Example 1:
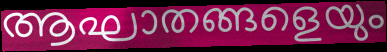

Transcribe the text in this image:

ആഘാതങ്ങളെയും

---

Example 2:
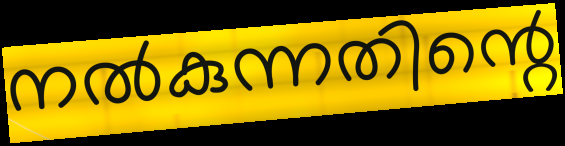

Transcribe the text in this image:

നൽകുന്നതിന്റെ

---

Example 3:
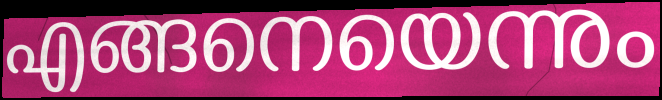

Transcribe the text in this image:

എങ്ങനെയെന്നും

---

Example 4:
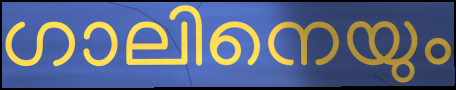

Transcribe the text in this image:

ഗാലിനെയും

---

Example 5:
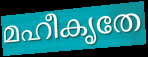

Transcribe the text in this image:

മഹീകൃതേ